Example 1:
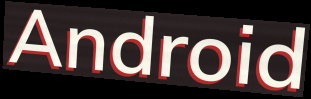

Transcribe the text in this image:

Android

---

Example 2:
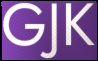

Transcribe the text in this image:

GJK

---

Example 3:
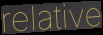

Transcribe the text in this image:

relative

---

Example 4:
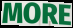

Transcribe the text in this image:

MORE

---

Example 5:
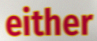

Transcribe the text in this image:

either